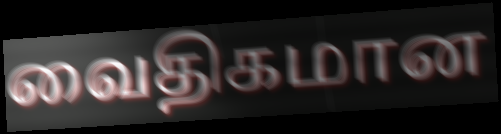
வைதிகமான